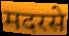
मदरसे